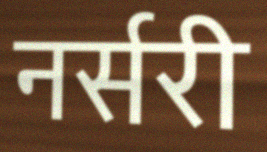
नर्सरी